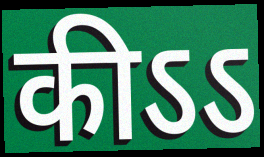
कीऽऽ